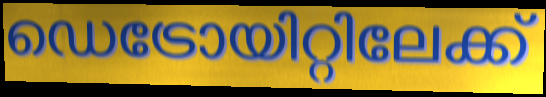
ഡെട്രോയിറ്റിലേക്ക്